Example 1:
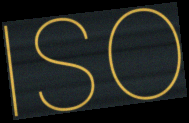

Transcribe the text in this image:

ISO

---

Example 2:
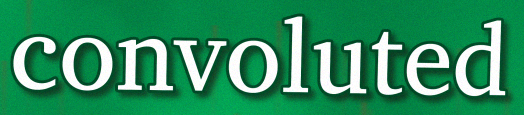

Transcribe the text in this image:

convoluted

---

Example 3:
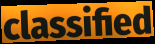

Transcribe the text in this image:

classified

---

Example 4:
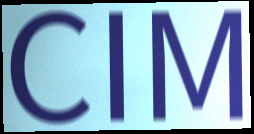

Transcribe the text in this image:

CIM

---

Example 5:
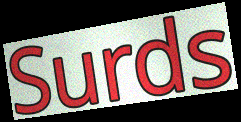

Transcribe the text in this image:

Surds